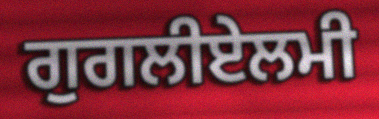
ਗੁਗਲੀਏਲਮੀ